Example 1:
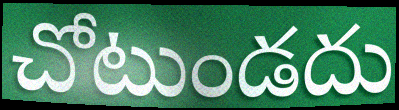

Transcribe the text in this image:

చోటుండదు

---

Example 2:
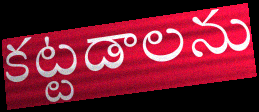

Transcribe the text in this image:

కట్టడాలను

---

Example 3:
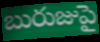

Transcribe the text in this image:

బురుజుపై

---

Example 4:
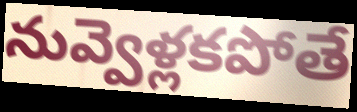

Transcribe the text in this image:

నువ్వెళ్లకపోతే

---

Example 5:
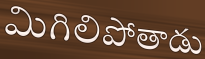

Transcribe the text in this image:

మిగిలిపోతాడు